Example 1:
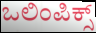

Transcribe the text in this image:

ಒಲಿಂಪಿಕ್ಸ್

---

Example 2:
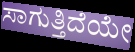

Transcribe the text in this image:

ಸಾಗುತ್ತಿದೆಯೇ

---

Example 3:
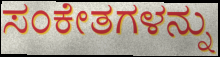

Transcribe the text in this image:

ಸಂಕೇತಗಳನ್ನು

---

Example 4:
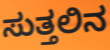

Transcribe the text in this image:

ಸುತ್ತಲಿನ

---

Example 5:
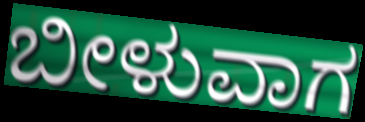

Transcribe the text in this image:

ಬೀಳುವಾಗ